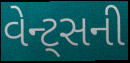
વેન્ટ્સની